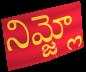
నిమ్జ్లో